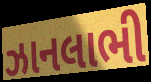
ઝાનલાભી